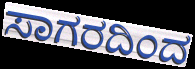
ಸಾಗರದಿಂದ